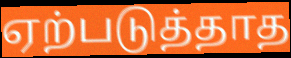
ஏற்படுத்தாத